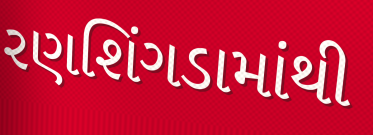
રણશિંગડામાંથી